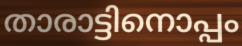
താരാട്ടിനൊപ്പം